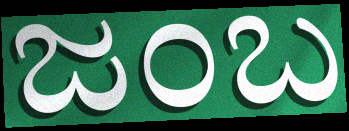
ಜಂಬ